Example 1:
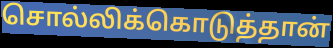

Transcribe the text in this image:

சொல்லிக்கொடுத்தான்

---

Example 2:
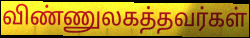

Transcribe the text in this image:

விண்ணுலகத்தவர்கள்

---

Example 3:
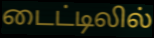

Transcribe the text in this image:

டைட்டிலில்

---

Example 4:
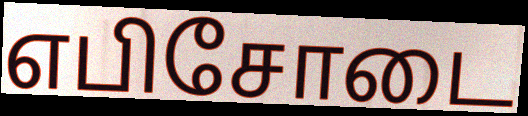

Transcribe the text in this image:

எபிசோடை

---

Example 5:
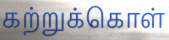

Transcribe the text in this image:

கற்றுக்கொள்